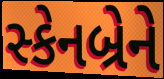
સ્કેનબ્રેને